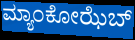
ಮ್ಯಾಂಕೋಝೆಬ್